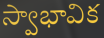
స్వాభావిక